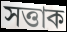
সত্তাক